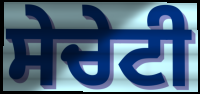
ਸੇਚੇਟੀ